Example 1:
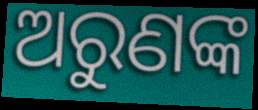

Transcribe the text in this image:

ଅରୁଣଙ୍କ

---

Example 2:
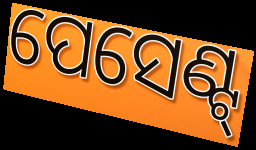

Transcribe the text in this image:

ପେସେଣ୍ଟ୍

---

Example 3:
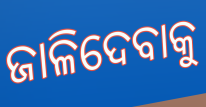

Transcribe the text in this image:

ଜାଳିଦେବାକୁ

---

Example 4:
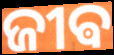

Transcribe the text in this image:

ଜୀଵ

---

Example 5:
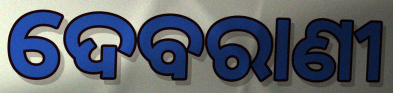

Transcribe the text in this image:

ଦେବରାଣୀ